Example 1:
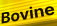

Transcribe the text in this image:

Bovine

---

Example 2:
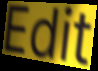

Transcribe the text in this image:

Edit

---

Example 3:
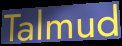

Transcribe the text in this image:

Talmud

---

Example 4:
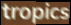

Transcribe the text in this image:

tropics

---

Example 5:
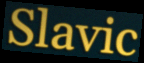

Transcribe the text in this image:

Slavic